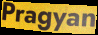
Pragyan